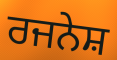
ਰਜਨੇਸ਼